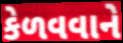
કેળવવાને